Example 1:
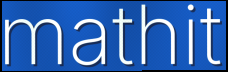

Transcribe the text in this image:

mathit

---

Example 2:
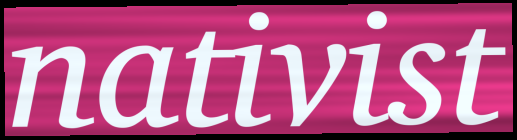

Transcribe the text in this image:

nativist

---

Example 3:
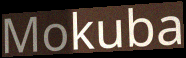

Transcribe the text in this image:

Mokuba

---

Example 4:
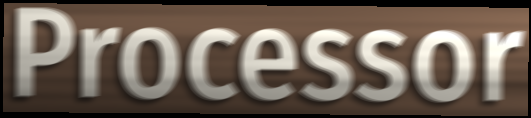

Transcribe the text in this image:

Processor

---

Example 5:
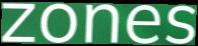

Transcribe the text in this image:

zones